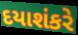
દયાશંકરે